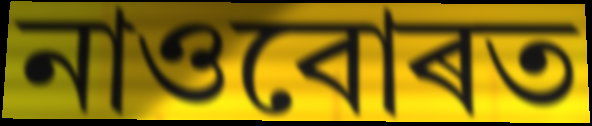
নাওবোৰত